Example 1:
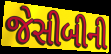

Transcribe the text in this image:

જેસીબીની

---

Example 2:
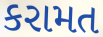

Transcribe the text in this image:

કરામત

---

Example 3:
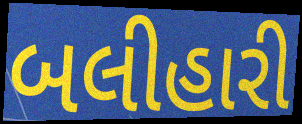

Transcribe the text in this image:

બલીહારી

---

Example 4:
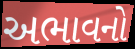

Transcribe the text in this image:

અભાવનો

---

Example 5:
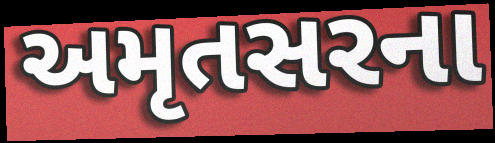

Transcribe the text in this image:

અમૃતસરના